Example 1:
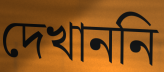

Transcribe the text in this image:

দেখাননি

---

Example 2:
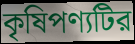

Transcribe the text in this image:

কৃষিপণ্যটির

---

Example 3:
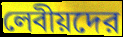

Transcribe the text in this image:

লেবীয়দের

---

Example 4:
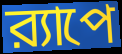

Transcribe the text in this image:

র‍্যাপে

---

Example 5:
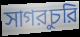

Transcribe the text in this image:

সাগরচুরি